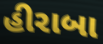
હીરાબા